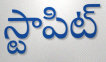
స్టాపిట్